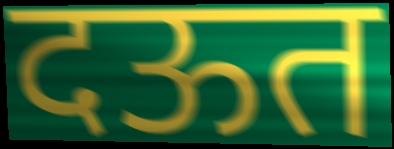
दऊत